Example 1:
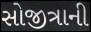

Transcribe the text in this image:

સોજીત્રાની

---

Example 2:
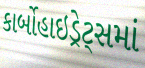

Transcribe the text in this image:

કાર્બોહાઇડ્રેટ્સમાં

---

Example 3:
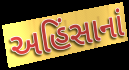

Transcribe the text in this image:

અહિંસાનાં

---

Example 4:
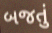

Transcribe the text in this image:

બજતું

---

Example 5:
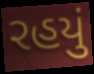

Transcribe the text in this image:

રહયું